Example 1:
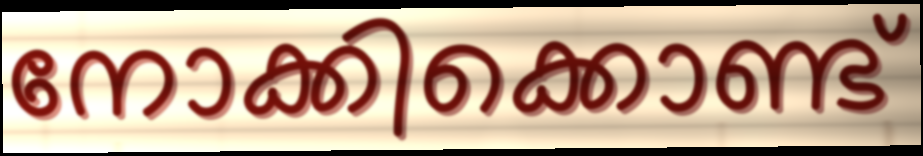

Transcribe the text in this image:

നോക്കിക്കൊണ്ട്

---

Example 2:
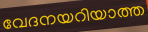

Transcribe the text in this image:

വേദനയറിയാത്ത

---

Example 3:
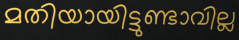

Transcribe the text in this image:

മതിയായിട്ടുണ്ടാവില്ല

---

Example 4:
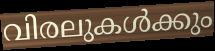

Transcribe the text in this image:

വിരലുകൾക്കും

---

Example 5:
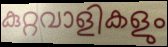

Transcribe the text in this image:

കുറ്റവാളികളും